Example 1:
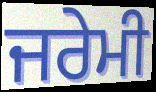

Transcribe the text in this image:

ਜਰੇਮੀ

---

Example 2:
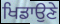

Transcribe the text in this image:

ਖਿਡਾਉਣੇ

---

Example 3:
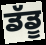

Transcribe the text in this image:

ਡੱਡੂ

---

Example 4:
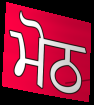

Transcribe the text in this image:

ਮੋਠ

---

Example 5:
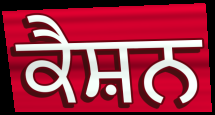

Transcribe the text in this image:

ਕੈਸ਼ਨ